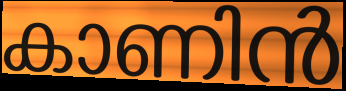
കാണിൻ